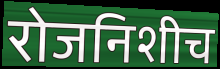
रोजनिशीच